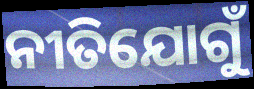
ନୀତିଯୋଗୁଁ